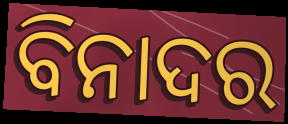
ବିନାଦର